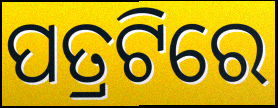
ପତ୍ରଟିରେ